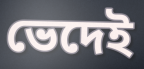
ভেদেই